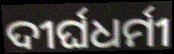
ଦୀର୍ଘଧର୍ମୀ